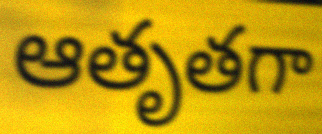
ఆతృతగా